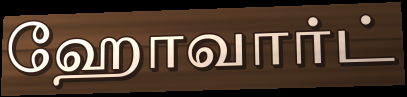
ஹோவார்ட்